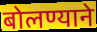
बोलण्याने